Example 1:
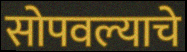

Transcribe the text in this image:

सोपवल्याचे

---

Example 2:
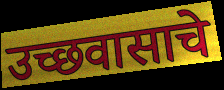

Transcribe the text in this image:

उच्छवासाचे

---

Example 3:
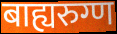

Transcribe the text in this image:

बाह्यरुग्ण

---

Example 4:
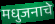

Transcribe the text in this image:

मधुजनाचे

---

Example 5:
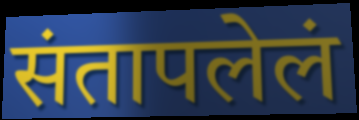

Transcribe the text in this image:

संतापलेलं